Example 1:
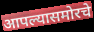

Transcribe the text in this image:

आपल्यासमोरचे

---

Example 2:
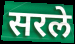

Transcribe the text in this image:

सरले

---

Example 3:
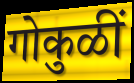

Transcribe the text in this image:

गोकुळीं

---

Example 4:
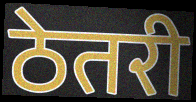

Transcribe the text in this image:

ठेतरी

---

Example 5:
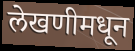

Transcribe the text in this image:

लेखणीमधून